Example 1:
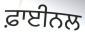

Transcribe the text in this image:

ਫ਼ਾਈਨਲ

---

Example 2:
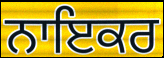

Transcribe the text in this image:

ਨਾਇਕਰ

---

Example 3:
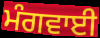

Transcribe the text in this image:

ਮੰਗਵਾਈ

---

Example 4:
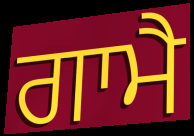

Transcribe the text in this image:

ਗਾਮੈ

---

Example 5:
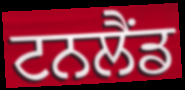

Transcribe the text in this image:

ਟਨਲੈਂਡ